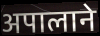
अपालाने